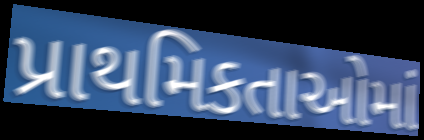
પ્રાથમિકતાઓમાં